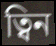
ত্বিন